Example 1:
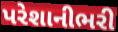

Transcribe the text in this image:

પરેશાનીભરી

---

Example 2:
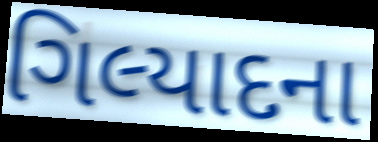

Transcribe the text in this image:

ગિલ્યાદના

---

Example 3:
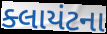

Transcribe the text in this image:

ક્લાયંટના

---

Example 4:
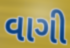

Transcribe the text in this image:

વાગી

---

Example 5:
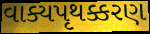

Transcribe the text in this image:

વાક્યપૃથક્કરણ